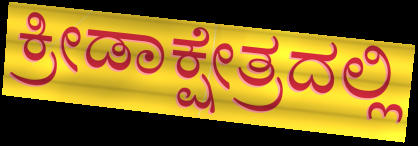
ಕ್ರೀಡಾಕ್ಷೇತ್ರದಲ್ಲಿ